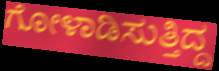
ಗೋಳಾಡಿಸುತ್ತಿದ್ದ